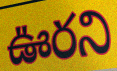
ఊరని